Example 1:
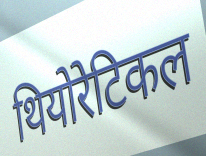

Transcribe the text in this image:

थियोरेटिकल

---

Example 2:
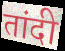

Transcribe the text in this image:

तांदी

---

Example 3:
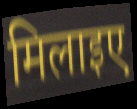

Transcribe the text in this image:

मिलाइए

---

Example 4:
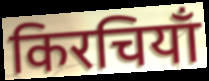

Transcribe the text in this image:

किरचियाँ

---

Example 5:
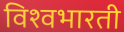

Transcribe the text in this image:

विश्वभारती